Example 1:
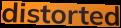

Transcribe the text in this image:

distorted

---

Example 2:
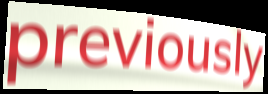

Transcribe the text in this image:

previously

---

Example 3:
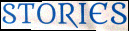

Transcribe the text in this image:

STORIES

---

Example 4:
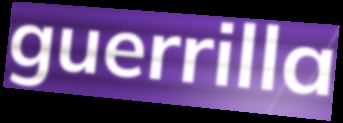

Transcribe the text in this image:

guerrilla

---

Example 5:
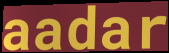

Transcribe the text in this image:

aadar